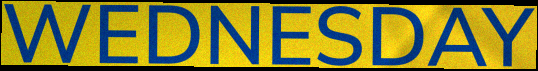
WEDNESDAY